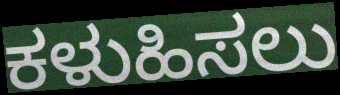
ಕಳುಹಿಸಲು